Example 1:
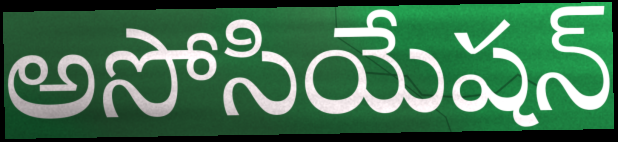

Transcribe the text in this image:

అసోసియేషన్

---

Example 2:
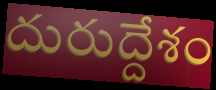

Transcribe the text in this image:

దురుద్దేశం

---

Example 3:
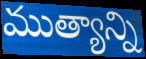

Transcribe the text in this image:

ముత్యాన్ని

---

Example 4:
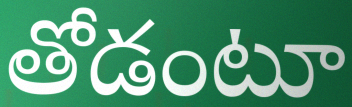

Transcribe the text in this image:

తోడంటూ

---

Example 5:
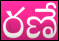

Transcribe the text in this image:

రణే